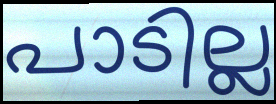
പാടില്ല